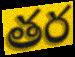
తర